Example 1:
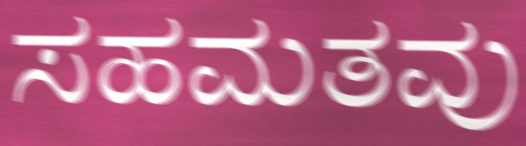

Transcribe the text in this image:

ಸಹಮತವು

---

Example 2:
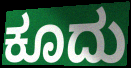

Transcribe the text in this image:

ಕೂದು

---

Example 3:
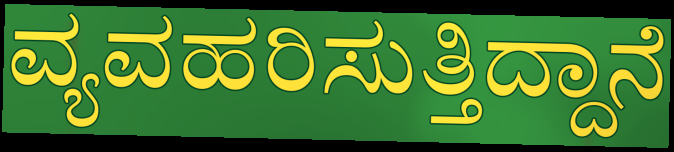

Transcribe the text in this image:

ವ್ಯವಹರಿಸುತ್ತಿದ್ದಾನೆ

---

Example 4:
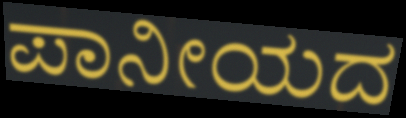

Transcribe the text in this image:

ಪಾನೀಯದ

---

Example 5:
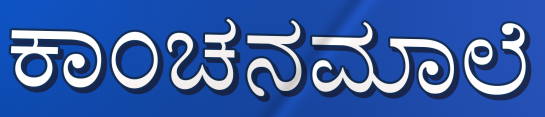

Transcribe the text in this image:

ಕಾಂಚನಮಾಲೆ